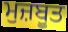
ਮੁਜ਼ਬੂਤ